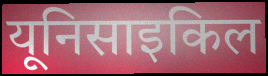
यूनिसाइकिल